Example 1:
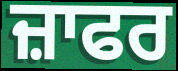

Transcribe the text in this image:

ਜ਼ਾਫਰ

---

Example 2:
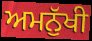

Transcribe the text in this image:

ਅਮਨੁੱਖੀ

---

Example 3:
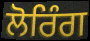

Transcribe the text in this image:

ਲੋਰਿੰਗ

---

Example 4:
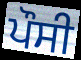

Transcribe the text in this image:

ਪੌਸੀ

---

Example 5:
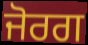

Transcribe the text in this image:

ਜੋਰਗ